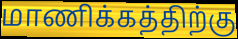
மாணிக்கத்திற்கு